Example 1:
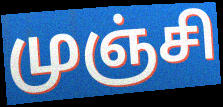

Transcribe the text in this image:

முஞ்சி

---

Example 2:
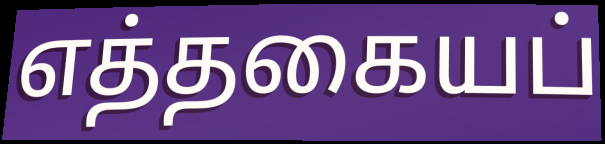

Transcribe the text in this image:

எத்தகையப்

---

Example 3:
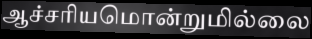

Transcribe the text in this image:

ஆச்சரியமொன்றுமில்லை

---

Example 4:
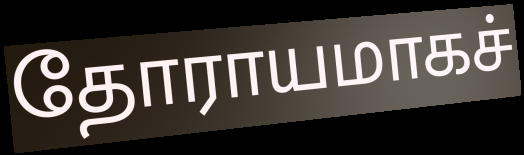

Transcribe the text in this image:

தோராயமாகச்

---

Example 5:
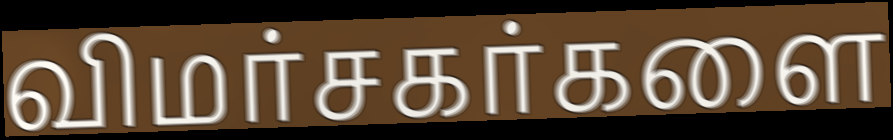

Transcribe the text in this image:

விமர்சகர்களை